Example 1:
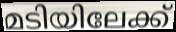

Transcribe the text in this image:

മടിയിലേക്ക്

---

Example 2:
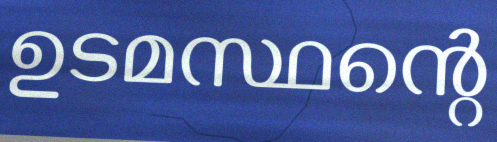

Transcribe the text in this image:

ഉടമസ്ഥന്റെ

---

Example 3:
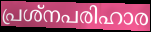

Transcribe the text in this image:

പ്രശ്നപരിഹാര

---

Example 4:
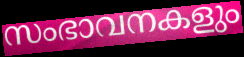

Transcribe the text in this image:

സംഭാവനകളും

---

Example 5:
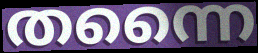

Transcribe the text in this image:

തന്നൈ